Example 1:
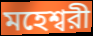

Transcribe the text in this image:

মহেশ্বরী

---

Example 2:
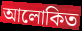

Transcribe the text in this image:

আলোকিত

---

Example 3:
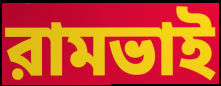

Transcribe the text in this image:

রামভাই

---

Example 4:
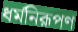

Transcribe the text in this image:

ধর্মনিরূপণ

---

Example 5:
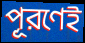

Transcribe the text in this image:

পূরণেই